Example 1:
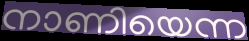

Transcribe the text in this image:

നാണിയെന്ന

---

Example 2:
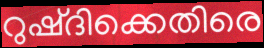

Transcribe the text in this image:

റുഷ്ദിക്കെതിരെ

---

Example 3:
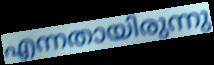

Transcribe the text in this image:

എന്നതായിരുന്നു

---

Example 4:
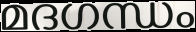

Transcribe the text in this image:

മദഗന്ധം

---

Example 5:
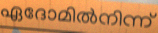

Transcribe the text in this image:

ഏദോമിൽനിന്ന്